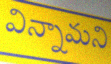
విన్నామని